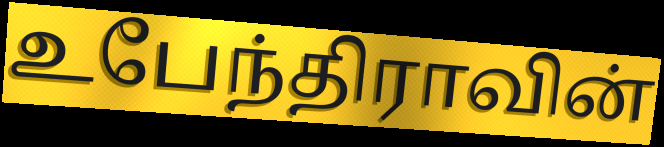
உபேந்திராவின்